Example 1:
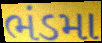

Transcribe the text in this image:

ભંડમા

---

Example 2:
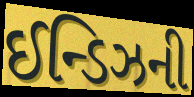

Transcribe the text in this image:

ઈન્ડિઝની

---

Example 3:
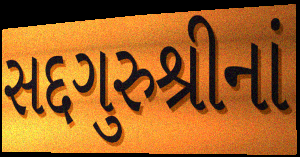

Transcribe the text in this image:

સદ્દગુરુશ્રીનાં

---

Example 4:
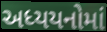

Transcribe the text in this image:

અધ્યયનોમાં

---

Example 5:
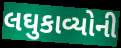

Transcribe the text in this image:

લઘુકાવ્યોની